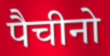
पैचीनो